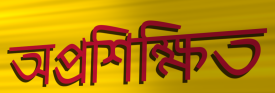
অপ্রশিক্ষিত